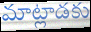
మాట్లాడకు